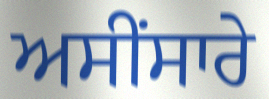
ਅਸੀਂਸਾਰੇ